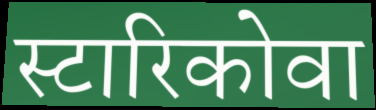
स्टारिकोवा